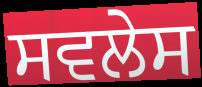
ਸਵਲੇਸ